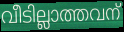
വീടില്ലാത്തവന്